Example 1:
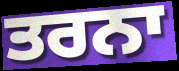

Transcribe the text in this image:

ਤਰਨਾ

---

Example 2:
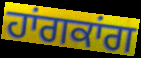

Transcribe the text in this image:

ਹਾਂਗਕਾਂਗ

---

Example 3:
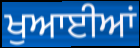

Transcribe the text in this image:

ਖੁਆਈਆਂ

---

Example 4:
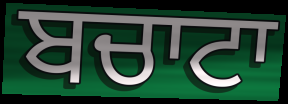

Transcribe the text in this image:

ਬਚਾਟਾ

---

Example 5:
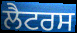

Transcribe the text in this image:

ਲੈਟਰਸ